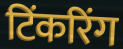
टिंकरिंग